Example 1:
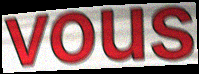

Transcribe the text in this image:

vous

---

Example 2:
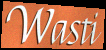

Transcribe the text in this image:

Wasti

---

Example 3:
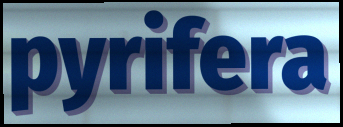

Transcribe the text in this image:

pyrifera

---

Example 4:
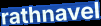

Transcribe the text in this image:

rathnavel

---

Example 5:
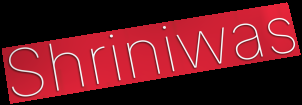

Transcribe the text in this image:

Shriniwas